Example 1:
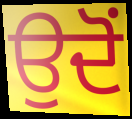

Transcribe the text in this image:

ਉਦੋੰ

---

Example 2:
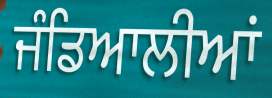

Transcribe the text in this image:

ਜੰਡਿਆਲੀਆਂ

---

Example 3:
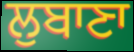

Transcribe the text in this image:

ਲੁਬਾਣਾ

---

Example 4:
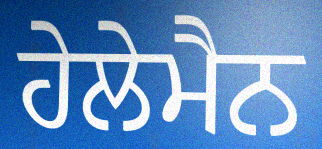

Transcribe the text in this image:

ਹੇਲੇਮੈਨ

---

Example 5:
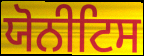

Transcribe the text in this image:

ਯੋਨੀਟਿਸ